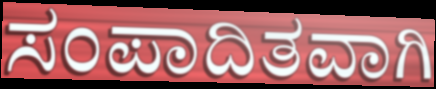
ಸಂಪಾದಿತವಾಗಿ